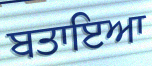
ਬਤਾਇਆ